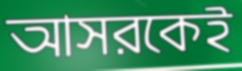
আসরকেই